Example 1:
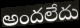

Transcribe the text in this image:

అందలేదు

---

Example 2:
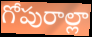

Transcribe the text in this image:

గోపురాల్లా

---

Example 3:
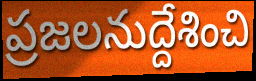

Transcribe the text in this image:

ప్రజలనుద్దేశించి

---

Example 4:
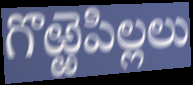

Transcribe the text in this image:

గొఱ్ఱెపిల్లలు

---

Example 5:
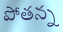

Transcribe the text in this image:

పోతన్న